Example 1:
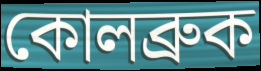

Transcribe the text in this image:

কোলব্রুক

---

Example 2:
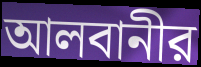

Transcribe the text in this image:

আলবানীর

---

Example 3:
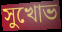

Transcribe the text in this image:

সুখোভ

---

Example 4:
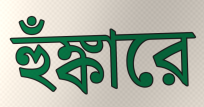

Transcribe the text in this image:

হুঁঙ্কারে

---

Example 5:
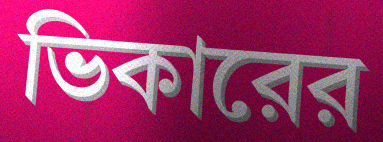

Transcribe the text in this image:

ভিকারের